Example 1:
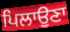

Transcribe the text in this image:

ਪਿਲਾਉਣਾ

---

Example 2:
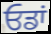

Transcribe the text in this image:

ਓਡਾਂ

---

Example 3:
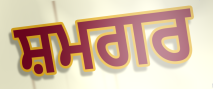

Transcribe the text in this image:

ਸ਼ਮਗਰ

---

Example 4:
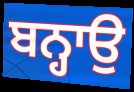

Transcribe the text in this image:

ਬਨ੍ਹਾਉ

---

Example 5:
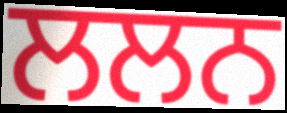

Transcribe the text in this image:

ਲਲਨ